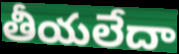
తీయలేదా